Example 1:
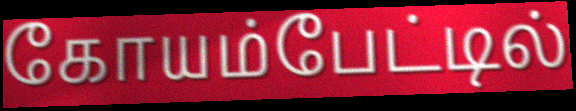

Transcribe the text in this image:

கோயம்பேட்டில்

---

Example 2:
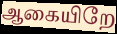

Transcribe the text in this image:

ஆகையிறே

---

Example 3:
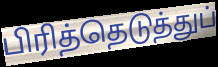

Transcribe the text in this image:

பிரித்தெடுத்துப்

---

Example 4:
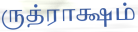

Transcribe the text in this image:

ருத்ராக்ஷம்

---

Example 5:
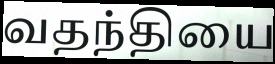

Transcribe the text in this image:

வதந்தியை